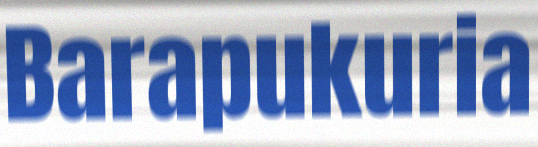
Barapukuria